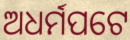
ଅଧର୍ମପଟେ